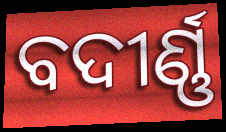
ବଦୀର୍ଣ୍ଣ